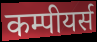
कम्पीयर्स